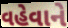
વહેવાને